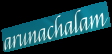
arunachalam